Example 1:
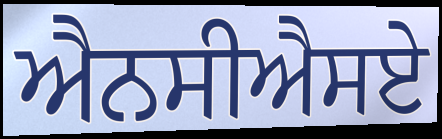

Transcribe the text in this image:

ਐਨਸੀਐਸਏ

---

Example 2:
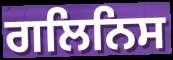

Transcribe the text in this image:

ਗਲਿਨਿਸ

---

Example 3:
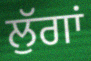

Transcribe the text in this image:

ਲੁੱਗਾਂ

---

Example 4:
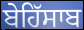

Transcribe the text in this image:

ਬੇਹਿੱਸਾਬ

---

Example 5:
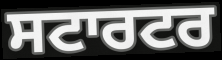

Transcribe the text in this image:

ਸਟਾਰਟਰ